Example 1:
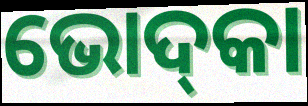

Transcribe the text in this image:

ଭୋଦ୍‌କା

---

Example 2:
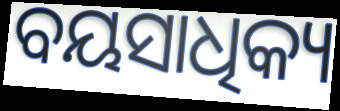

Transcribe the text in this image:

ବୟସାଧିକ୍ୟ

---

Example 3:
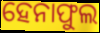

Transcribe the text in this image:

ହେନାଫୁଲ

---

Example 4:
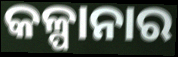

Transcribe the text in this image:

କଳ୍ପାନାର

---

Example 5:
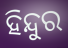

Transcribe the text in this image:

ହିନ୍ଦୁର